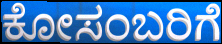
ಕೋಸಂಬರಿಗೆ